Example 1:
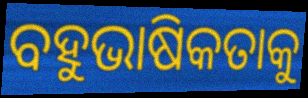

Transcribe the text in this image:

ବହୁଭାଷିକତାକୁ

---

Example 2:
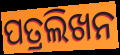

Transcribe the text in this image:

ପତ୍ରଲିଖନ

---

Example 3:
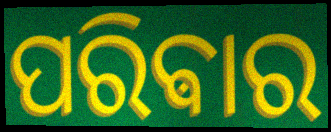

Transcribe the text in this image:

ପରିଵାର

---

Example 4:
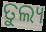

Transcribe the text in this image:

ତୁଲ୍ୟ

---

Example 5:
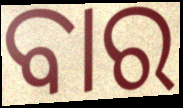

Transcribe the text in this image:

ବାର